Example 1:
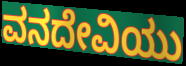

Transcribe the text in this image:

ವನದೇವಿಯು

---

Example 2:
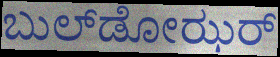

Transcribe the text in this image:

ಬುಲ್‌ಡೋಝರ್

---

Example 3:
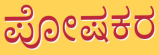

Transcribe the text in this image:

ಪೋಷಕರ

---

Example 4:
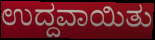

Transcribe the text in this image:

ಉದ್ದವಾಯಿತು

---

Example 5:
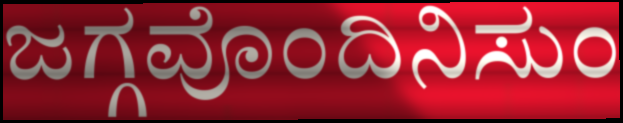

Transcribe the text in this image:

ಜಗ್ಗವೊಂದಿನಿಸುಂ